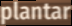
plantar